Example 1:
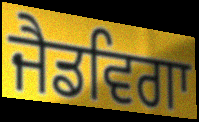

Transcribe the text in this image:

ਜੈਡਵਿਗਾ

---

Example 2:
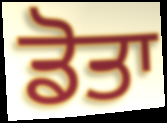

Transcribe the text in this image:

ਡੋਤਾ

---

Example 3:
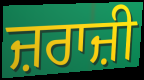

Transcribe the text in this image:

ਜ਼ਰਾਜ਼ੀ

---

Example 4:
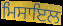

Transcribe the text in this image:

ਮਿਸਾਇਲ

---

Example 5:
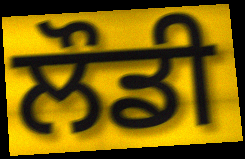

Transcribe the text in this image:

ਲੌਡੀ